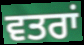
ਵਤਰਾਂ